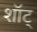
शॉट्